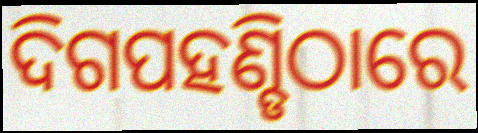
ଦିଗପହଣ୍ଡିଠାରେ